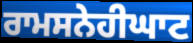
ਰਾਮਸਨੇਹੀਘਾਟ